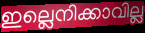
ഇല്ലെനിക്കാവില്ല